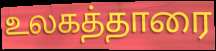
உலகத்தாரை